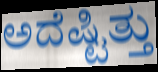
ಅದೆಷ್ಟಿತ್ತು